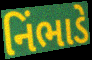
નિંભાડે